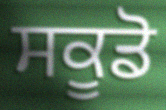
ਸਕੂਡੋ